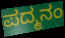
ಪದ್ಮನಂ